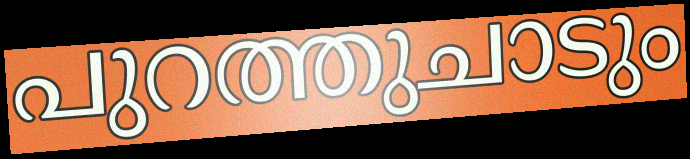
പുറത്തുചാടും